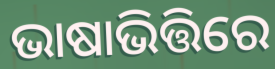
ଭାଷାଭିତ୍ତିରେ